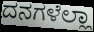
ದನಗಳೆಲ್ಲಾ